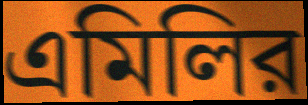
এমিলির